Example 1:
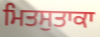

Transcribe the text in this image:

ਮਿਤਸੁਤਾਕਾ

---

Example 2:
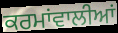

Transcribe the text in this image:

ਕਰਮਾਂਵਾਲੀਆਂ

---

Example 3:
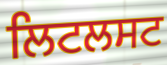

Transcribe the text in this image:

ਲਿਟਲਸਟ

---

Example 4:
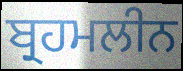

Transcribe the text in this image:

ਬ੍ਰਹਮਲੀਨ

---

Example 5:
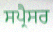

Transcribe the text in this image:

ਸਪ੍ਰੈਸਰ